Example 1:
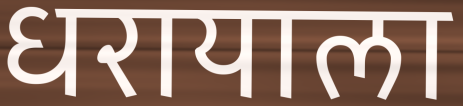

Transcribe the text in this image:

धरायाला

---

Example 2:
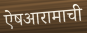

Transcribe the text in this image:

ऐषआरामाची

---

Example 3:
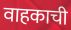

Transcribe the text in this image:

वाहकाची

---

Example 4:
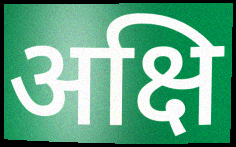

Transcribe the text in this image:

अक्षि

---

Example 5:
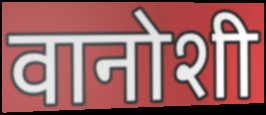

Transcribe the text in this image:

वानोशी